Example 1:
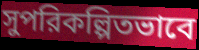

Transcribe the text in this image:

সুপরিকল্পিতভাবে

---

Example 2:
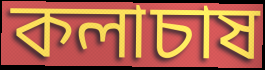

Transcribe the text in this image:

কলাচাষ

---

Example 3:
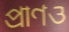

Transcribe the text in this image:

প্রাণও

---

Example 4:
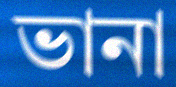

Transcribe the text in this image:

ভানা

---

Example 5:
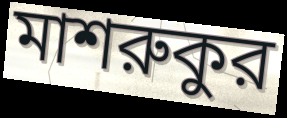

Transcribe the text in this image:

মাশরুকুর